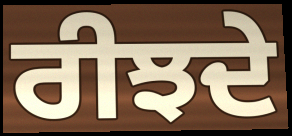
ਰੀਝਦੇ